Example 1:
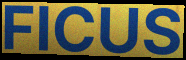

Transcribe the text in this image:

FICUS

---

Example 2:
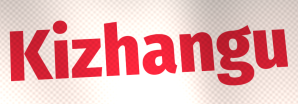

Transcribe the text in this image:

Kizhangu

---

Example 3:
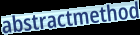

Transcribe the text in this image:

abstractmethod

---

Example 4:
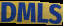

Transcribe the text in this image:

DMLS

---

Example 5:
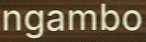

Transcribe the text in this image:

ngambo